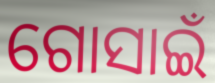
ଗୋସାଇଁ